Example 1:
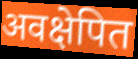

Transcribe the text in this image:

अवक्षेपित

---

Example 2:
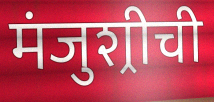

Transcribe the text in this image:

मंजुश्रीची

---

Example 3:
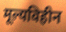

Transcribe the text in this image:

मूल्यविहीन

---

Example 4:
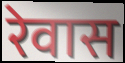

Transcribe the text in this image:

रेवास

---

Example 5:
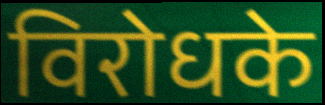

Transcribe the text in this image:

विरोधके